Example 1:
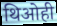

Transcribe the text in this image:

थिओही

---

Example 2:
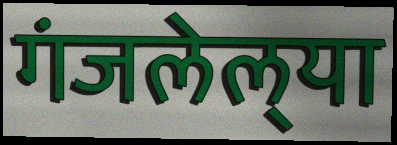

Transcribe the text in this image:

गंजलेल्या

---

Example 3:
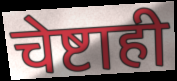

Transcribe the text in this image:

चेष्टाही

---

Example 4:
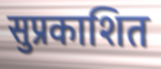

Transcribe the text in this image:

सुप्रकाशित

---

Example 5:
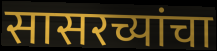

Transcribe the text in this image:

सासरच्यांचा